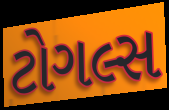
ટોગલ્સ